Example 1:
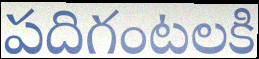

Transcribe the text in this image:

పదిగంటలకి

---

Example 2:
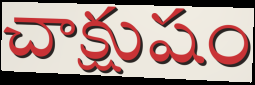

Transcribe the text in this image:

చాక్షుషం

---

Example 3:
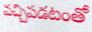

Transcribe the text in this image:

వచ్చిపడటంతో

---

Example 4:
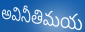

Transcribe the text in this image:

అవినీతిమయ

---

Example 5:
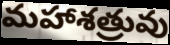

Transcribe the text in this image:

మహాశత్రువు